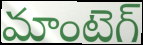
మాంటెగ్